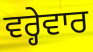
ਵਰ੍ਹੇਵਾਰ